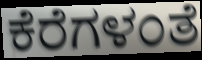
ಕೆರೆಗಳಂತೆ